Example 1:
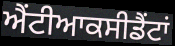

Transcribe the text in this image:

ਐਂਟੀਆਕਸੀਡੈਂਟਾਂ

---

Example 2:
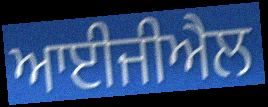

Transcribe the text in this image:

ਆਈਜੀਐਲ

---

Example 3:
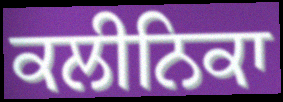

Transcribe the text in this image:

ਕਲੀਨਿਕਾ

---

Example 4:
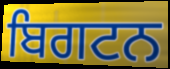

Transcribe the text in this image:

ਬਿਗਟਨ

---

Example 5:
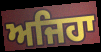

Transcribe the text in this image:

ਅਜਿਹਾ